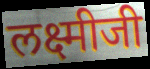
लक्ष्मीजी